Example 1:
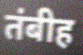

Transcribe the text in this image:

तंबीह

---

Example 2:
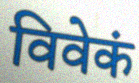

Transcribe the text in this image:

विवेकं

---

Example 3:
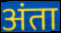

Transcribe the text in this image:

अंता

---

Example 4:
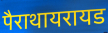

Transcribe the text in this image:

पैराथायरायड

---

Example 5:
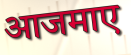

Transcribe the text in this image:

आजमाए